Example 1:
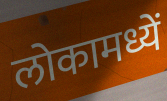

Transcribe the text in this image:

लोकामध्यें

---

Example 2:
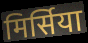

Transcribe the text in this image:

मिर्सिया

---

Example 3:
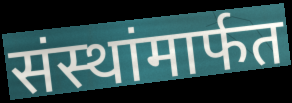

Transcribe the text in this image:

संस्थांमार्फत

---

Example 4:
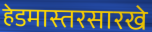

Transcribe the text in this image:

हेडमास्तरसारखे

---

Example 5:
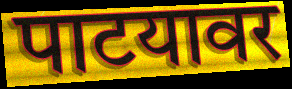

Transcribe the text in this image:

पाटयावर